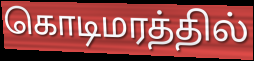
கொடிமரத்தில்